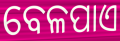
ବେଳପାଏ